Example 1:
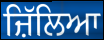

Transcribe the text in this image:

ਜ਼ਿੱਲਿਆ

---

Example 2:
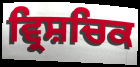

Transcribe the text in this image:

ਵ੍ਰਿਸ਼ਚਿਕ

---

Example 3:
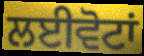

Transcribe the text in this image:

ਲਈਵੋਟਾਂ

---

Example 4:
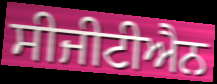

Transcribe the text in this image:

ਸੀਜੀਟੀਐਨ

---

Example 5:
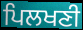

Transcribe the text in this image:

ਪਿਲਖਣੀ